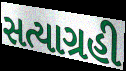
સત્યાગ્રહી